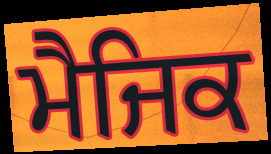
ਮੈਜਿਕ